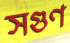
সগুণ